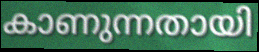
കാണുന്നതായി